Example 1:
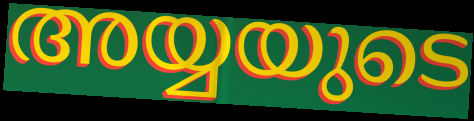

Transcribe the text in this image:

അയ്യയുടെ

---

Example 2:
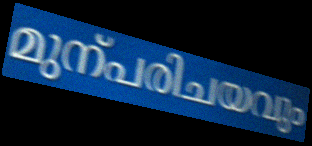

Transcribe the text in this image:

മുന്പരിചയവും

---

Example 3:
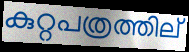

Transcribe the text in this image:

കുറ്റപത്രത്തില്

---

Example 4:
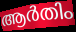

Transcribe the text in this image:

ആർതിം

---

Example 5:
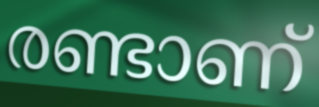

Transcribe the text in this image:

രണ്ടാണ്